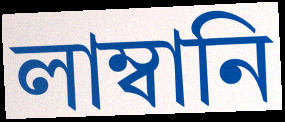
লাম্বানি